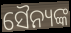
ସୈନ୍ୟଙ୍କ